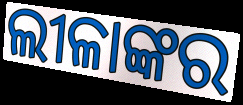
ଲୀଳାଙ୍କର